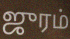
ஜுரம்